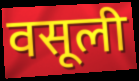
वसूली